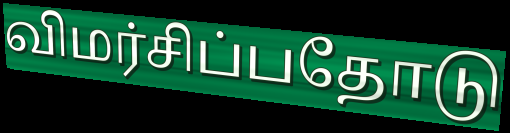
விமர்சிப்பதோடு